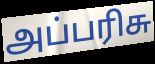
அப்பரிசு